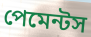
পেমেন্টস